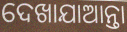
ଦେଖାଯାଆନ୍ତା